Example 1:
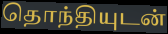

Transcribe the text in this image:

தொந்தியுடன்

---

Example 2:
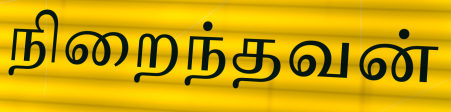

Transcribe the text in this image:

நிறைந்தவன்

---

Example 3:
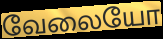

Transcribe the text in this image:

வேலையோ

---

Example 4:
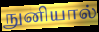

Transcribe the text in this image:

நுனியால்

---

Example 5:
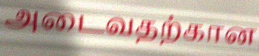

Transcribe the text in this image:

அடைவதற்கான